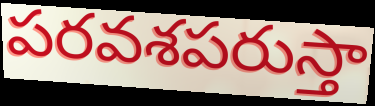
పరవశపరుస్తా